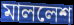
মাললেশ